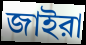
জাইরা